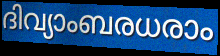
ദിവ്യാംബരധരാം